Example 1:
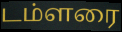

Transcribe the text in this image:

டம்ளரை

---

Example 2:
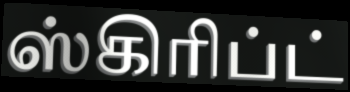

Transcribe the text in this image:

ஸ்கிரிப்ட்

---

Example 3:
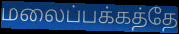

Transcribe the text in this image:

மலைப்பக்கத்தே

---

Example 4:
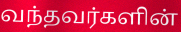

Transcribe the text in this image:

வந்தவர்களின்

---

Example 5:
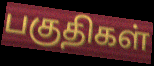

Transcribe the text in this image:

பகுதிகள்